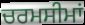
ਚਰਮਸੀਮਾਂ